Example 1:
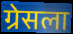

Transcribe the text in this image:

ग्रेसला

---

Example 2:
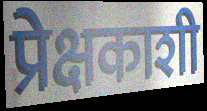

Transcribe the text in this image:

प्रेक्षकाशी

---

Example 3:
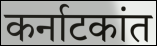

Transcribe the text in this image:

कर्नाटकांत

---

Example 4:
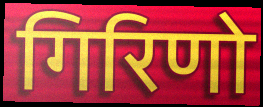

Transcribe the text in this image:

गिरिणो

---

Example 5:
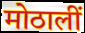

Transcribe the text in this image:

मोठालीं